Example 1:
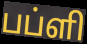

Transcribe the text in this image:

பப்ளி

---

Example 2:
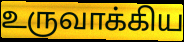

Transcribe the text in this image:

உருவாக்கிய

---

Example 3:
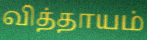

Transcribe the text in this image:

வித்தாயம்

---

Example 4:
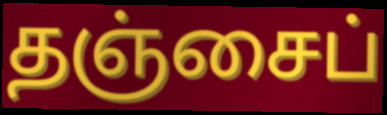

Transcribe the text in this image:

தஞ்சைப்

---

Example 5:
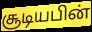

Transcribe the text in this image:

சூடியபின்